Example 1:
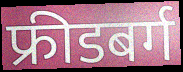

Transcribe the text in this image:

फ्रीडबर्ग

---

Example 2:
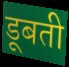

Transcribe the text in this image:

डूबती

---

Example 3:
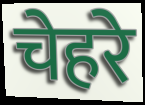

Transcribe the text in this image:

चेहरे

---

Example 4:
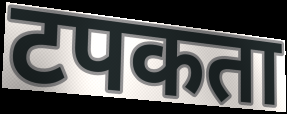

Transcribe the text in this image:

टपकता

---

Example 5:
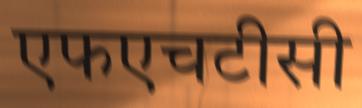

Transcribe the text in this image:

एफएचटीसी